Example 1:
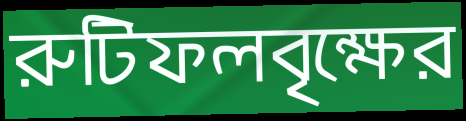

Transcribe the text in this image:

রুটিফলবৃক্ষের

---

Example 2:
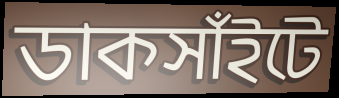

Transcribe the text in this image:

ডাকসাঁইটে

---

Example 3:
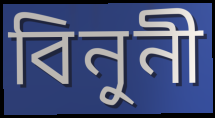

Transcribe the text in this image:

বিনুনী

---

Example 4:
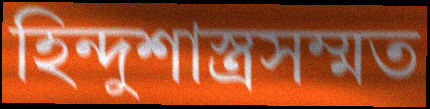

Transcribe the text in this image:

হিন্দুশাস্ত্রসম্মত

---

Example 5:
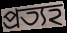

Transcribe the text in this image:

প্রত্যহ